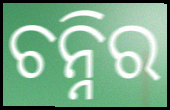
ଚନ୍ନିର